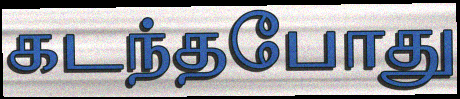
கடந்தபோது